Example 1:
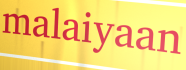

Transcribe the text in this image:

malaiyaan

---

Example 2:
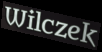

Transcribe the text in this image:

Wilczek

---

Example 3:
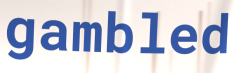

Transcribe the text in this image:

gambled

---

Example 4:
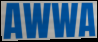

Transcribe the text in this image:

AWWA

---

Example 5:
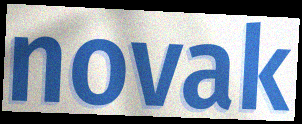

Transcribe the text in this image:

novak